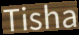
Tisha